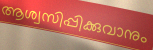
ആശ്വസിപ്പിക്കുവാനും